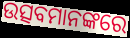
ଉତ୍ସବମାନଙ୍କରେ